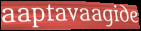
aaptavaagide